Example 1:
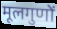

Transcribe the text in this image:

मूलगुणों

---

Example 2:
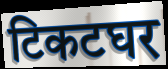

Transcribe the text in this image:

टिकटघर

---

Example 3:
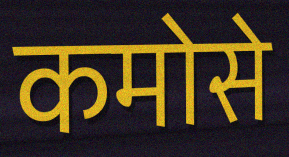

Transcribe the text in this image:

कमोसे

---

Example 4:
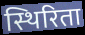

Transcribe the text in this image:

स्थिरिता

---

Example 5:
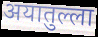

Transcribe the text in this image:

अयातुल्‍ला